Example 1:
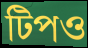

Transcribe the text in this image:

টিপও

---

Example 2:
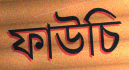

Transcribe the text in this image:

ফাউচি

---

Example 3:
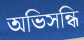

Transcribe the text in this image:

অভিসন্ধি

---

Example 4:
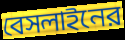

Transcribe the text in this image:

বেসলাইনের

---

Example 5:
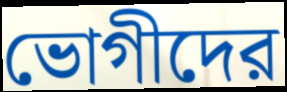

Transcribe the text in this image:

ভোগীদের